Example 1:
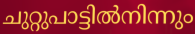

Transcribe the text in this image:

ചുറ്റുപാട്ടിൽനിന്നും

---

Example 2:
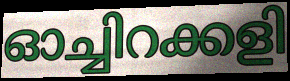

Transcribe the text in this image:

ഓച്ചിറക്കളി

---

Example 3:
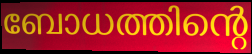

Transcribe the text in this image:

ബോധത്തിന്റെ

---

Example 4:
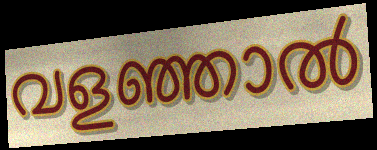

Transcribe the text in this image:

വളഞ്ഞാൽ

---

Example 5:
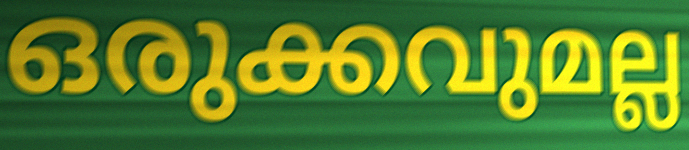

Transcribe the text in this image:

ഒരുക്കവുമല്ല